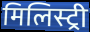
मिलिस्ट्री